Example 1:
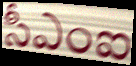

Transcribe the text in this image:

సీఎంఐ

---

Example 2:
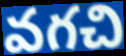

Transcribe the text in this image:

వగచి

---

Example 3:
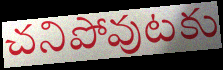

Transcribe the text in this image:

చనిపోవుటకు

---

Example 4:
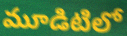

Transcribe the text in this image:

మూడిటిలో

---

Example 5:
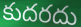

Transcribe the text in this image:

కుదరదు